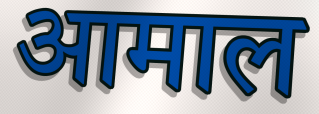
आमाल